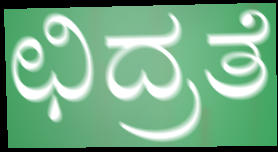
ಛಿದ್ರತೆ